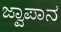
ಜ್ವಾಪಾನ